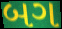
બગ